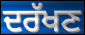
ਦਰੱਖਣ